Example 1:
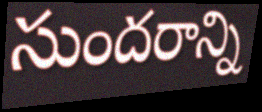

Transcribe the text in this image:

సుందరాన్ని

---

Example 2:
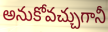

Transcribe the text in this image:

అనుకోవచ్చుగానీ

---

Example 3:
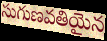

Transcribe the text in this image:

సుగుణవతియైన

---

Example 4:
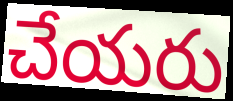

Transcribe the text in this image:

చేయరు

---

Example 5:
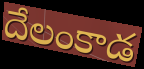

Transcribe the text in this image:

దేలంకాడ